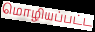
மொழியப்பட்ட